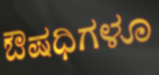
ಔಷಧಿಗಳೂ